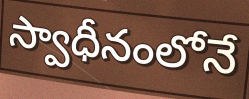
స్వాధీనంలోనే